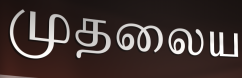
முதலைய